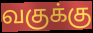
வகுக்கு